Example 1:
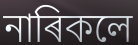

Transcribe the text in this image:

নাৰিকলে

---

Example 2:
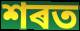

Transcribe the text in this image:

শৰত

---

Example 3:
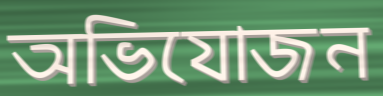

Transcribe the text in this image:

অভিযোজন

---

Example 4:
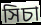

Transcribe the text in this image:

সিচা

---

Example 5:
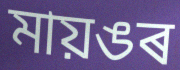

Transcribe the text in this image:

মায়ঙৰ